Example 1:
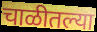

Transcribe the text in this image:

चाळीतल्या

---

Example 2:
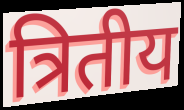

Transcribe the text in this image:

त्रितीय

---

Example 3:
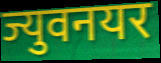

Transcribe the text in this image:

ज्युवनयर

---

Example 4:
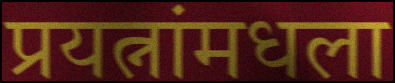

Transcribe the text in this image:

प्रयत्नांमधला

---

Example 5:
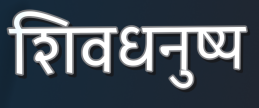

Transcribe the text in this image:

शिवधनुष्य